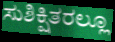
ಸುಶಿಕ್ಷಿತರಲ್ಲೂ